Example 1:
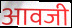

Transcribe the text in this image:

आवजी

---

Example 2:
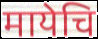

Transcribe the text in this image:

मायेचि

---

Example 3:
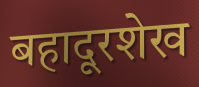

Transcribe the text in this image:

बहादूरशेख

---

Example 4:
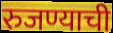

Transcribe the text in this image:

रुजण्याची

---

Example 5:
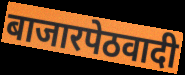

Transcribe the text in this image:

बाजारपेठवादी